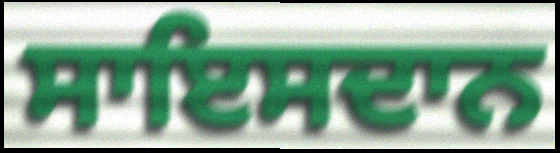
ਸਾਇਸਦਾਨ